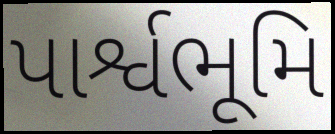
પાર્શ્વભૂમિ